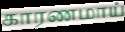
காரணமாய்